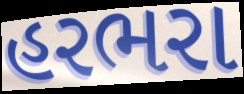
હરભરા